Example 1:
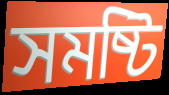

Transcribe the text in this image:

সমষ্টি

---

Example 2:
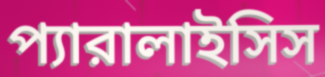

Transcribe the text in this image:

প্যারালাইসিস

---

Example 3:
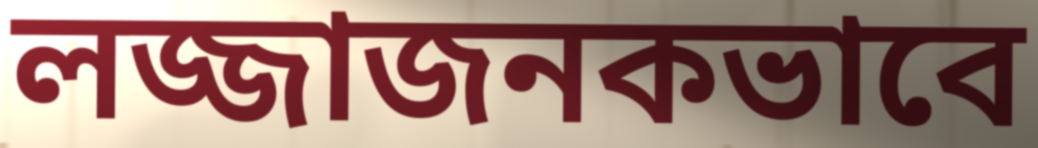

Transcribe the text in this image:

লজ্জাজনকভাবে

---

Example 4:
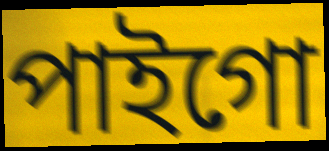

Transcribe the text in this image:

পাইগো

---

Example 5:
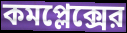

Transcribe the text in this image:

কমপ্লেক্সের